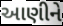
આણીને